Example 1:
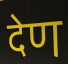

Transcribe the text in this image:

देण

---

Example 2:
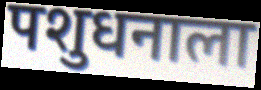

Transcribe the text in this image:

पशुधनाला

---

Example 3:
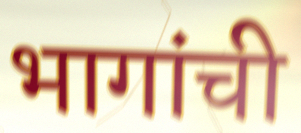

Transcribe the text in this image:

भागांची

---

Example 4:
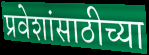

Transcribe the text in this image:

प्रवेशांसाठीच्या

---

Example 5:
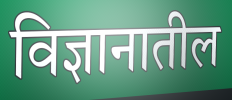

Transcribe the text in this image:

विज्ञानातील